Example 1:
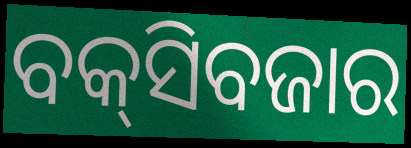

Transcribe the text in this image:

ବକ୍‌ସିବଜାର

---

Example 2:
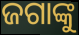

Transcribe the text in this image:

ଜଗାଙ୍କୁ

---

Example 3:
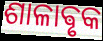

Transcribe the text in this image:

ଶାଳାଵୃକ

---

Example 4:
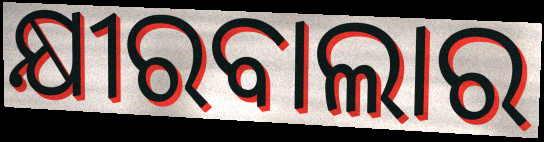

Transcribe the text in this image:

କ୍ଷୀରବାଲାର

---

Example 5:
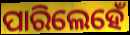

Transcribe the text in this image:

ପାରିଲେହେଁ